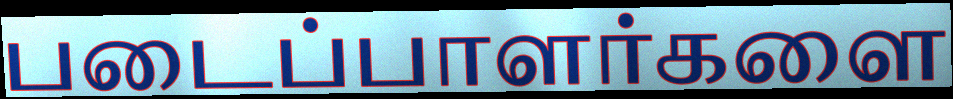
படைப்பாளர்களை